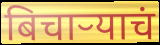
बिचाऱ्याचं